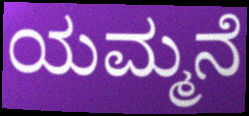
ಯಮ್ಮನೆ